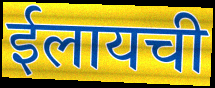
ईलायची